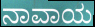
ನಾವಾಯ